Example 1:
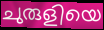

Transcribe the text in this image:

ചുരുളിയെ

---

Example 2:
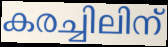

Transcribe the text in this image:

കരച്ചിലിന്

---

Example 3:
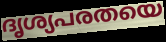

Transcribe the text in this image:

ദൃശ്യപരതയെ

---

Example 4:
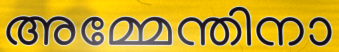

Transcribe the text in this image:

അമ്മേന്തിനാ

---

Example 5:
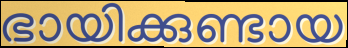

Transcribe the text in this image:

ഭായിക്കുണ്ടായ